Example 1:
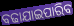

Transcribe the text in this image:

ବଢାଯାଇପାରିବ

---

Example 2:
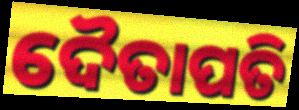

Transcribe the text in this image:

ଦୈତାପତି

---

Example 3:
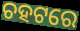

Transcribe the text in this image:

ଚହଟରେ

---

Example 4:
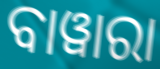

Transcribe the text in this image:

ବାୱାରା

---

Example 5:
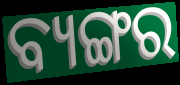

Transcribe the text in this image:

ବ୍ୟଙ୍ଗର